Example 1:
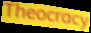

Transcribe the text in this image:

Theocracy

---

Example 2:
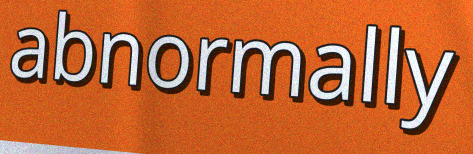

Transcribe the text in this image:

abnormally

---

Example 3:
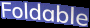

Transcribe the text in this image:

Foldable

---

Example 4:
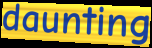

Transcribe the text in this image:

daunting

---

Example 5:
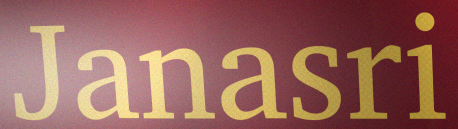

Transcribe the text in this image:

Janasri